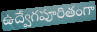
ఉద్వేగపూరితంగా